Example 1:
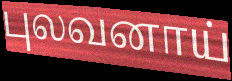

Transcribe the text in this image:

புலவனாய்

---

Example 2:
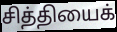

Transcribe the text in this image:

சித்தியைக்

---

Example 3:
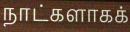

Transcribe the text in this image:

நாட்களாகக்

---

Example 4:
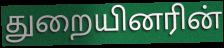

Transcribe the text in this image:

துறையினரின்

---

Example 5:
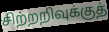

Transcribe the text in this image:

சிற்றறிவுக்குத்